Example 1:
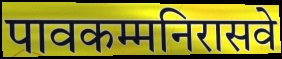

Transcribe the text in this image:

पावकम्मनिरासवे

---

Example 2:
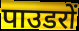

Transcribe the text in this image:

पाउडरों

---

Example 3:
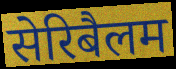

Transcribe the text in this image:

सेरिबैलम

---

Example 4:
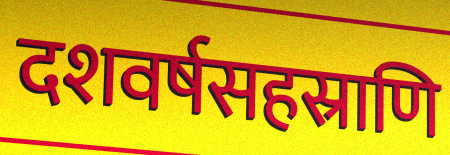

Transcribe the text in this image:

दशवर्षसहस्राणि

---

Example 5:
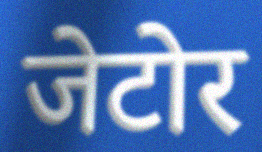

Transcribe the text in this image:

जेटोर